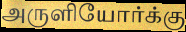
அருளியோர்க்கு